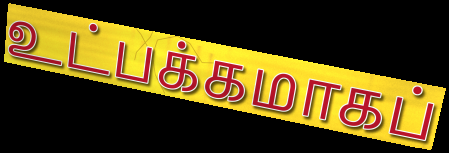
உட்பக்கமாகப்